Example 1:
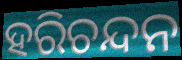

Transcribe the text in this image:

ହରିଚନ୍ଦନ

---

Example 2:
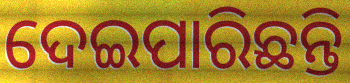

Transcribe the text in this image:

ଦେଇପାରିଛନ୍ତି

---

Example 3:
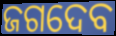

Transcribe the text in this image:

ଜଗଦେବ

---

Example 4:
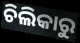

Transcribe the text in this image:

ଚିଲିକାରୁ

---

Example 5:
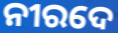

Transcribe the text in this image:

ନୀରଦେ